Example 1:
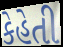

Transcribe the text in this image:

કેહેતી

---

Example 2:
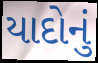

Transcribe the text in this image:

યાદોનું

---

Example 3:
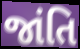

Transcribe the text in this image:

જાંતિ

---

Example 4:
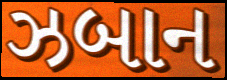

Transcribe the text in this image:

ઝબાન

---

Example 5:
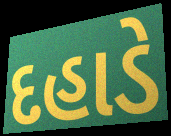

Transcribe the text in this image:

દહાડે